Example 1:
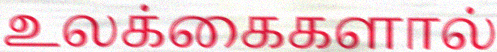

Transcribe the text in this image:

உலக்கைகளால்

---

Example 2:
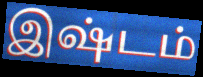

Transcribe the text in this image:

இஷ்டம்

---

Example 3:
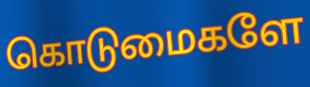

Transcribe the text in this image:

கொடுமைகளே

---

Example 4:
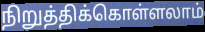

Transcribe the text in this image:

நிறுத்திக்கொள்ளலாம்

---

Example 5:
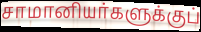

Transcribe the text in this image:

சாமானியர்களுக்குப்